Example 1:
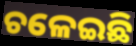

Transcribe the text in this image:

ଚଳେଇଛି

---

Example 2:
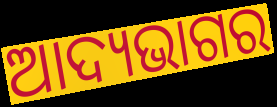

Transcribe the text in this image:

ଆଦ୍ୟଭାଗର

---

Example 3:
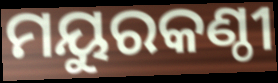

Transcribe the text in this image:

ମୟୁରକଣ୍ଠୀ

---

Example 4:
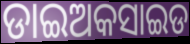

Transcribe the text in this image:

ଡାଇଅକସାଇଡ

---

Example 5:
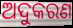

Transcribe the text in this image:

ଅଦୁକରଣ